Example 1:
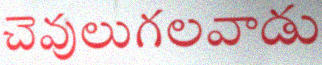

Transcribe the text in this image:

చెవులుగలవాడు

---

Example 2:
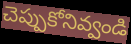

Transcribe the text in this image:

చెప్పుకోనివ్వండి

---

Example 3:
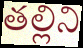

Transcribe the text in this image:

తల్లిని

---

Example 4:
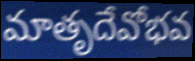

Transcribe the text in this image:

మాతృదేవోభవ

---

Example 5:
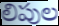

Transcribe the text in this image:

లిపుల